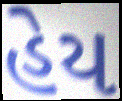
હેય